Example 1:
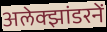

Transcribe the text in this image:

अलेक्झांडरनें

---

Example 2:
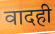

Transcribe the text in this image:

वादही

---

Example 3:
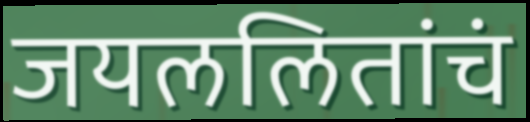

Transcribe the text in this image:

जयललितांचं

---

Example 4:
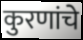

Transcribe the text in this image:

कुरणांचे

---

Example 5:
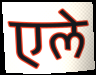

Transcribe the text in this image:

एले